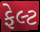
ફેલ્ટ